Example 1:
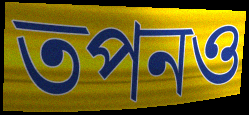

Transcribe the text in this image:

তপনও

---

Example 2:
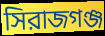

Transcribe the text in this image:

সিরাজগঞ্জ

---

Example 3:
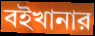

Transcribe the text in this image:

বইখানার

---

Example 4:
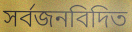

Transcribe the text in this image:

সর্বজনবিদিত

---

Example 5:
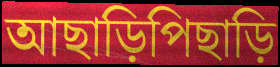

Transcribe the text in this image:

আছাড়িপিছাড়ি